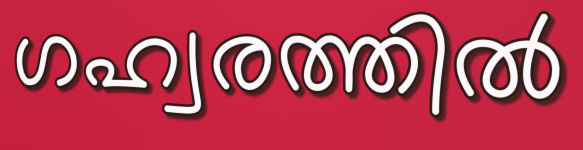
ഗഹ്വരത്തിൽ